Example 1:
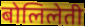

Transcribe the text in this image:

बोलिलेती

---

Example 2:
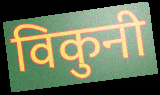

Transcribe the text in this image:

विकुनी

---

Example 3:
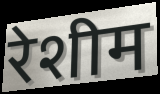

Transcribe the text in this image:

रेशीम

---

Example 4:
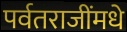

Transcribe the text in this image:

पर्वतराजींमधे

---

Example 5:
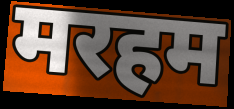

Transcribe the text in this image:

मरहम